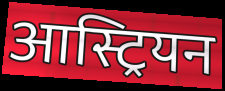
आस्ट्रियन